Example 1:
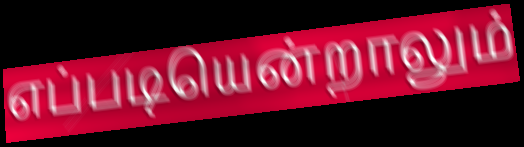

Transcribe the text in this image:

எப்படியென்றாலும்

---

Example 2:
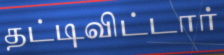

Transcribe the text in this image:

தட்டிவிட்டார்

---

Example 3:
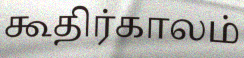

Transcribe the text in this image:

கூதிர்காலம்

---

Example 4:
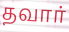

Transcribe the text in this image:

தவார்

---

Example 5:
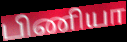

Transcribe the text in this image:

பிணியா